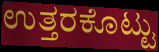
ಉತ್ತರಕೊಟ್ಟು